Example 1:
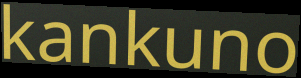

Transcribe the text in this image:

kankuno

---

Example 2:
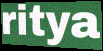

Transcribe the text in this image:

ritya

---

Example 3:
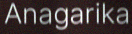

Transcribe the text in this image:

Anagarika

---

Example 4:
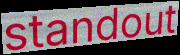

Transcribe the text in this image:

standout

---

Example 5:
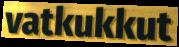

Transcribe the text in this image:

vatkukkut